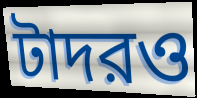
টাদরও